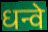
धन्वे